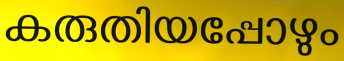
കരുതിയപ്പോഴും